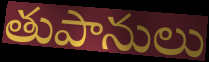
తుపానులు